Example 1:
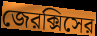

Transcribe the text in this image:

জেরক্সিসের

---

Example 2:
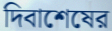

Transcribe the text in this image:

দিবাশেষের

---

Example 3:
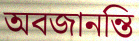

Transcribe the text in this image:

অবজানন্তি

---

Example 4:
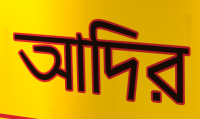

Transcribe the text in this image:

আদির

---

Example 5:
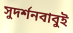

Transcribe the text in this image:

সুদর্শনবাবুই